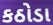
કઠોડા